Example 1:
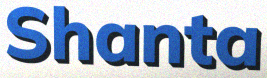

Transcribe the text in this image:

Shanta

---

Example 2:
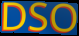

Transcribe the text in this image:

DSO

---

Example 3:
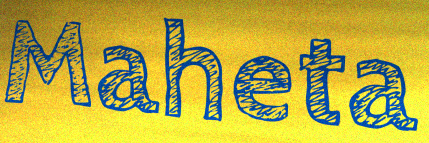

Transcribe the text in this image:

Maheta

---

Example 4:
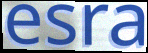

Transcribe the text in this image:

esra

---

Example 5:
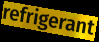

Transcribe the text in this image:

refrigerant